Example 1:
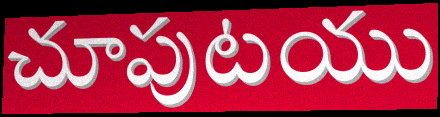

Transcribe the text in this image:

చూపుటయు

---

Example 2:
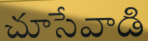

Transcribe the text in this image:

చూసేవాడి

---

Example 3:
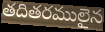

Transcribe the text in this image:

తదితరములైన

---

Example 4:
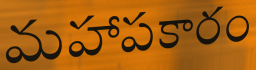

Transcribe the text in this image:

మహాపకారం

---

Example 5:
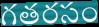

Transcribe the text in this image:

గతరసం